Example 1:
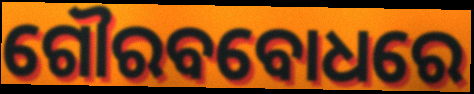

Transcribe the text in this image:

ଗୌରବବୋଧରେ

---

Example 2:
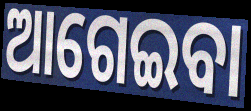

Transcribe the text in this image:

ଆଗେଇବା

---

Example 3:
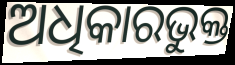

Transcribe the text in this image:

ଅଧିକାରଭୁକ୍ତ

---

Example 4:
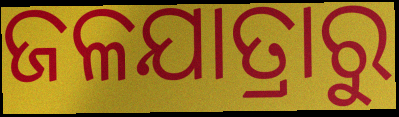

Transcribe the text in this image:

ଜଳଯାତ୍ରାରୁ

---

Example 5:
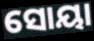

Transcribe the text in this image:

ସୋୟା